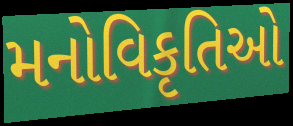
મનોવિકૃતિઓ